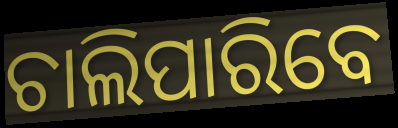
ଚାଲିପାରିବେ